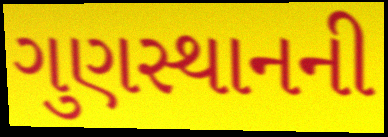
ગુણસ્થાનની